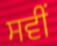
ਸਵੀਂ